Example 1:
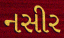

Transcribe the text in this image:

નસીર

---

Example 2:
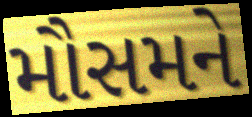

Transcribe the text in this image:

મૌસમને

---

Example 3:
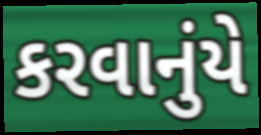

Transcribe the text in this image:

કરવાનુંયે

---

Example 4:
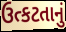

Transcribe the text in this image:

ઉત્કટતાનું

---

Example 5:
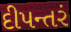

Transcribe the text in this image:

દીપન્તરં